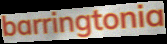
barringtonia